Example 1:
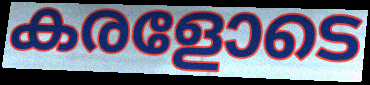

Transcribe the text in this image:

കരളോടെ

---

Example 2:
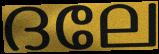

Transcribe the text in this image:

ദലേ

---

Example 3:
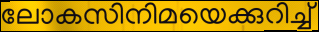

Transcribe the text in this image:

ലോകസിനിമയെക്കുറിച്ച്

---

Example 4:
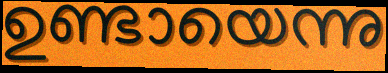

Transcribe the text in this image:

ഉണ്ടായെന്നു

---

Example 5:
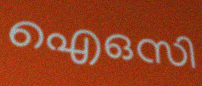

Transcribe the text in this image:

ഐഒസി